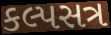
કલ્પસત્ર